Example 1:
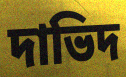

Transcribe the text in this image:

দাভিদ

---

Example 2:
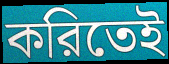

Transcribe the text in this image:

করিতেই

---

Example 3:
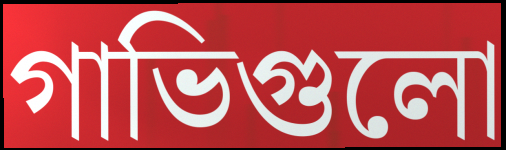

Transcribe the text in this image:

গাভিগুলো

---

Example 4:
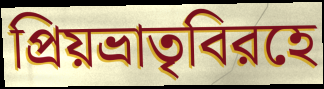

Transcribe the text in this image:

প্রিয়ভ্রাতৃবিরহে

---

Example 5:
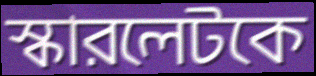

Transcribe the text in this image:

স্কারলেটকে